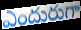
ఎందురుగా